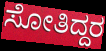
ಸೋತಿದ್ದರ